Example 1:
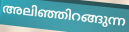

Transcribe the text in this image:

അലിഞ്ഞിറങ്ങുന്ന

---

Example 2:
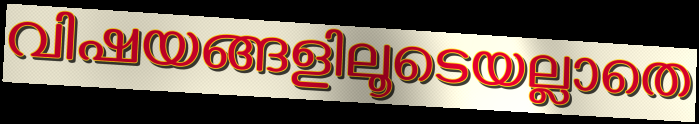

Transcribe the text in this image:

വിഷയങ്ങളിലൂടെയല്ലാതെ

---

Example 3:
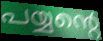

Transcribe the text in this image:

പയ്യന്റെ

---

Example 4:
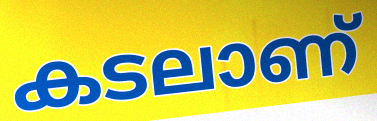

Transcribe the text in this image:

കടലാണ്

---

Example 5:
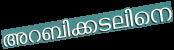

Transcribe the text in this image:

അറബിക്കടലിനെ